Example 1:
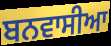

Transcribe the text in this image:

ਬਨਵਾਸੀਆ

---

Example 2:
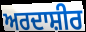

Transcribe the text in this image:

ਅਰਦਾਸ਼ੀਰ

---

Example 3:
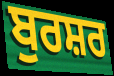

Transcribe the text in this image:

ਬੁਰਸ਼ਰ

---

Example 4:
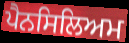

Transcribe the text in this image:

ਪੈਨਸਿਲਿਅਮ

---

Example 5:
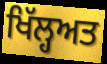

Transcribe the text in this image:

ਖਿੱਲ੍ਹਅਤ